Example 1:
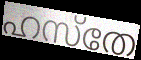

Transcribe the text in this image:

ഹസ്തേ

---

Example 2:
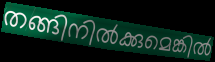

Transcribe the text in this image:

തങ്ങിനിൽക്കുമെങ്കിൽ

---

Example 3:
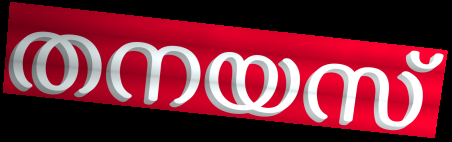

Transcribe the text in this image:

തനയസ്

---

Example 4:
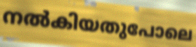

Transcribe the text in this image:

നൽകിയതുപോലെ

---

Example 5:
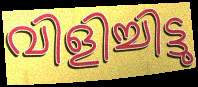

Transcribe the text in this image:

വിളിച്ചിട്ടു